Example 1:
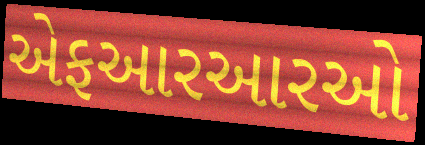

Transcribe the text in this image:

એફઆરઆરઓ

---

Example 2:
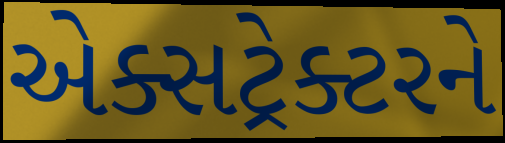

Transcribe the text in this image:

એક્સટ્રેક્ટરને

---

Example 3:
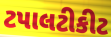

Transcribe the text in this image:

ટપાલટીકીટ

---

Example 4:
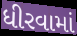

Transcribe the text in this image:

ધીરવામાં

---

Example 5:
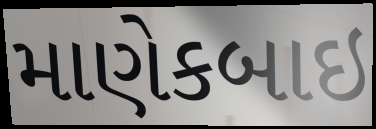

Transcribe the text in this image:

માણેકબાઇ